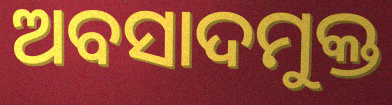
ଅବସାଦମୁକ୍ତ